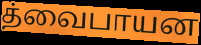
த்வைபாயன